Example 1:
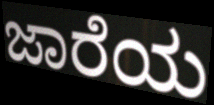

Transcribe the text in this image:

ಜಾರೆಯ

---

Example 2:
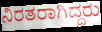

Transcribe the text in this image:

ನಿರತರಾಗಿದ್ದರು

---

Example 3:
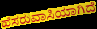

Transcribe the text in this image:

ಹೆಸರುವಾಸಿಯಾಗಿದೆ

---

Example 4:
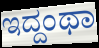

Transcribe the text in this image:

ಇದ್ದಂಥಾ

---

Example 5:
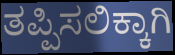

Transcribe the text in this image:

ತಪ್ಪಿಸಲಿಕ್ಕಾಗಿ